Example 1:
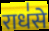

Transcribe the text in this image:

राध॑से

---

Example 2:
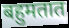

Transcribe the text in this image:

बहुमतात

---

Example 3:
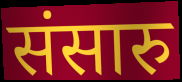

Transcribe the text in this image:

संसारु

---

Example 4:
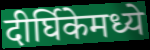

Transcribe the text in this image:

दीर्घिकेमध्ये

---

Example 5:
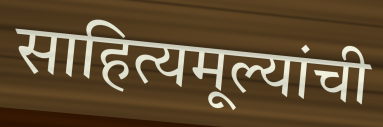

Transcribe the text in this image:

साहित्यमूल्यांची